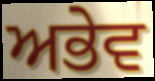
ਅਭੇਵ